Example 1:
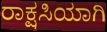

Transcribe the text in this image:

ರಾಕ್ಷಸಿಯಾಗಿ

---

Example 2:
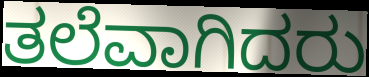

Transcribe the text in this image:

ತಲೆವಾಗಿದರು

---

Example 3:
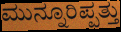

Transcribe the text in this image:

ಮುನ್ನೂರಿಪ್ಪತ್ತು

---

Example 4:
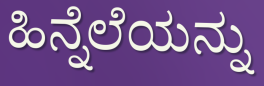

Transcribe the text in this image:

ಹಿನ್ನೆಲೆಯನ್ನು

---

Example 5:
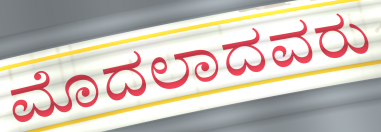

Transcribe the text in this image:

ಮೊದಲಾದವರು